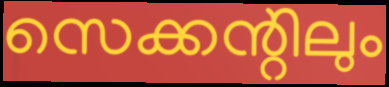
സെക്കന്റിലും